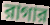
রাগার